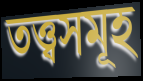
তত্ত্বসমূহ